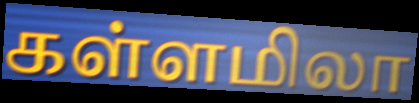
கள்ளமிலா